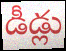
డీడ్లు